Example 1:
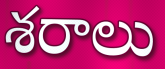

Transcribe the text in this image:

శరాలు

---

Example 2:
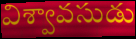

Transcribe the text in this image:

విశ్వావసుడు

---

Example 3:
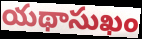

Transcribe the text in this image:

యథాసుఖం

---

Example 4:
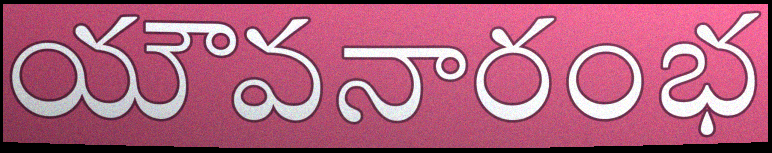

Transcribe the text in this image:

యౌవనారంభ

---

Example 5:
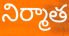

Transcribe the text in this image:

నిర్మాత